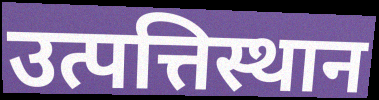
उत्पत्तिस्थान